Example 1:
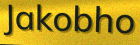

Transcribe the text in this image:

Jakobho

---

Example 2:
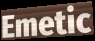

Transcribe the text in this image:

Emetic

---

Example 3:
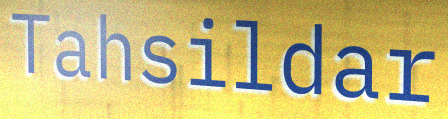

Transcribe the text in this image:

Tahsildar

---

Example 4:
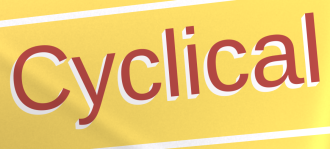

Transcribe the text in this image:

Cyclical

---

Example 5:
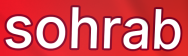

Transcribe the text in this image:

sohrab